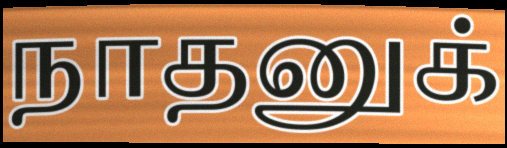
நாதனுக்